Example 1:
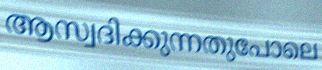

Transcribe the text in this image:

ആസ്വദിക്കുന്നതുപോലെ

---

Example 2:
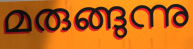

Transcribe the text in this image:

മരുങ്ങുന്നു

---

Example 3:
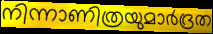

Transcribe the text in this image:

നിന്നാണിത്രയുമാർദ്രത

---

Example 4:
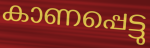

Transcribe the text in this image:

കാണപ്പെട്ടു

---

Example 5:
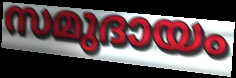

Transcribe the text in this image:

സമുദായം